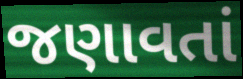
જણાવતાં